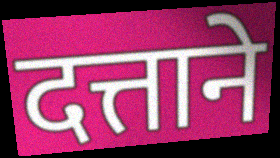
दत्ताने